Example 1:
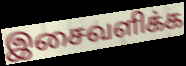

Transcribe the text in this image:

இசைவளிக்க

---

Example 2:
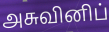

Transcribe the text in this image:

அசுவினிப்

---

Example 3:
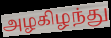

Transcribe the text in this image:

அழகிழந்து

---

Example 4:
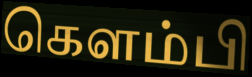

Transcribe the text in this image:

கெளம்பி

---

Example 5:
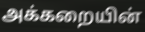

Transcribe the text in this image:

அக்கறையின்